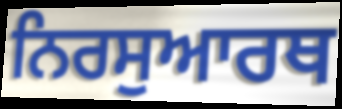
ਨਿਰਸੁਆਰਥ